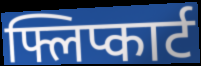
फ्लिप्कार्ट